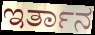
ಇರ್ತಾನ